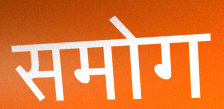
समोग